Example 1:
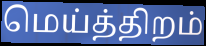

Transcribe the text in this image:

மெய்த்திறம்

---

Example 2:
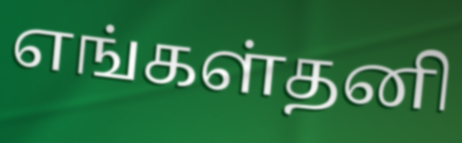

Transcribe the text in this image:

எங்கள்தனி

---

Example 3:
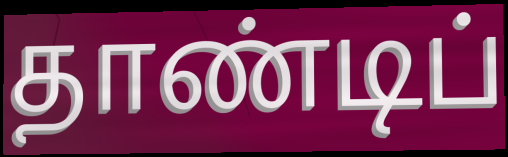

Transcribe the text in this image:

தாண்டிப்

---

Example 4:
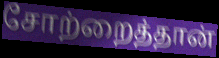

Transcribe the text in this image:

சோற்றைத்தான்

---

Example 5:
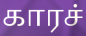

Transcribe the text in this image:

காரச்